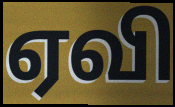
ஏவி